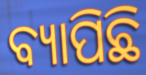
ବ୍ୟାପିଛି